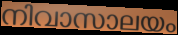
നിവാസാലയം